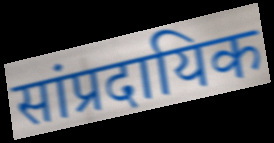
सांप्रदायिक